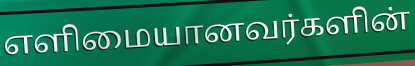
எளிமையானவர்களின்